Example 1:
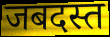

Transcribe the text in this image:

जबदस्त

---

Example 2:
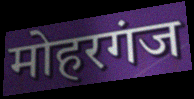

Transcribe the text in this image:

मोहरगंज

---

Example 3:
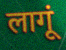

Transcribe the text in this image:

लागूं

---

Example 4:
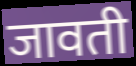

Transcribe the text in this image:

जावती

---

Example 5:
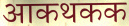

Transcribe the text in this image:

आकथकक